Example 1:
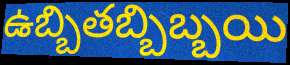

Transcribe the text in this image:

ఉబ్బితబ్బిబ్బయి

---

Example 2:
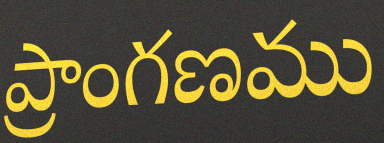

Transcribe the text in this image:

ప్రాంగణము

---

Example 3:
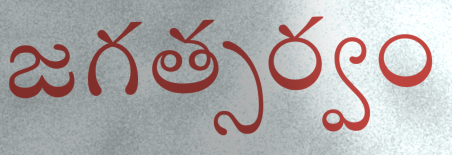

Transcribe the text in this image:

జగత్సర్వం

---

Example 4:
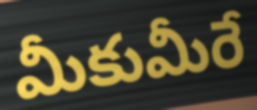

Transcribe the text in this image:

మీకుమీరే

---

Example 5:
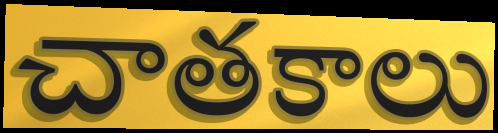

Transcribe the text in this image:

చాతకాలు